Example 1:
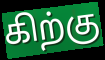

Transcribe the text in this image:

கிற்கு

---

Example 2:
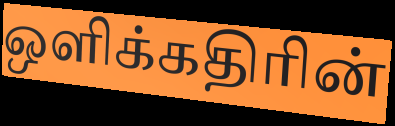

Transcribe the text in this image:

ஒளிக்கதிரின்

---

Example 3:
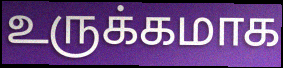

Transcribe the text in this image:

உருக்கமாக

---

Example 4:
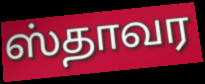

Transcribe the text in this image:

ஸ்தாவர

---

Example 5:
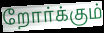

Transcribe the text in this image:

றோர்க்கும்